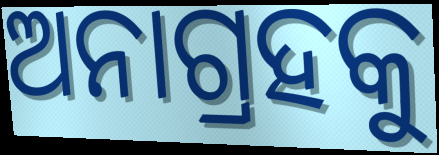
ଅନାଗ୍ରହକୁ